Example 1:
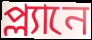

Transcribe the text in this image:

প্ল্যানে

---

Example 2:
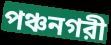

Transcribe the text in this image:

পঞ্চনগরী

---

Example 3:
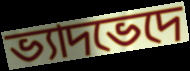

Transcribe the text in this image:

ভ্যাদভেদে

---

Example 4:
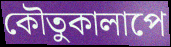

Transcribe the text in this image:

কৌতুকালাপে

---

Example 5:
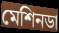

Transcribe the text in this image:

মেশিনডা